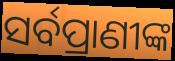
ସର୍ବପ୍ରାଣୀଙ୍କ